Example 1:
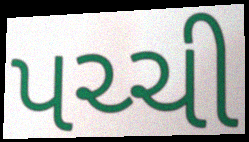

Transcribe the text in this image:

પચ્ચી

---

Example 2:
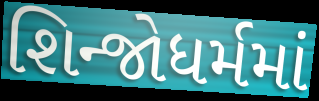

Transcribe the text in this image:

શિન્જોધર્મમાં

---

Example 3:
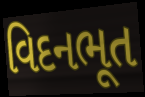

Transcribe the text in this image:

વિદનભૂત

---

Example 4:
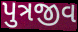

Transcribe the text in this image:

પુત્રજીવ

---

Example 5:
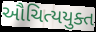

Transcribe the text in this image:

ઔચિત્યયુક્ત